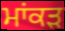
ਮਾਂਕੜ